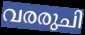
വരരുചി